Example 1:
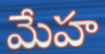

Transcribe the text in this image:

మేహ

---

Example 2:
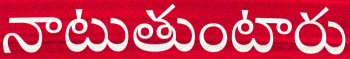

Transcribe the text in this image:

నాటుతుంటారు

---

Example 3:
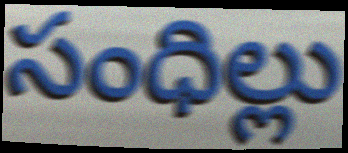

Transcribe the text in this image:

సంధిల్లు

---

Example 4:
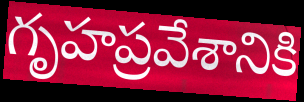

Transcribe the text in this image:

గృహప్రవేశానికి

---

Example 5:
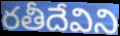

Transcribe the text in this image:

రతీదేవిని